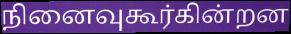
நினைவுகூர்கின்றன